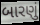
બારણું